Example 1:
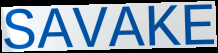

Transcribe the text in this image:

SAVAKE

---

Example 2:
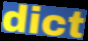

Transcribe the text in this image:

dict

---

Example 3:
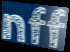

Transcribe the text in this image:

nff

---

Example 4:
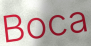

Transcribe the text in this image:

Boca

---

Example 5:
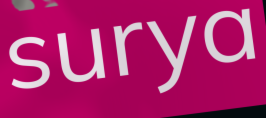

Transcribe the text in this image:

surya